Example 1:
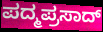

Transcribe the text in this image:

ಪದ್ಮಪ್ರಸಾದ್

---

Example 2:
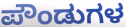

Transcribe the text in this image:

ಪೌಂಡುಗಳ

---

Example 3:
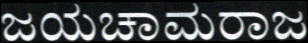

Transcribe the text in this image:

ಜಯಚಾಮರಾಜ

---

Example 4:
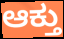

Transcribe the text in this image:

ಆಕ್ತು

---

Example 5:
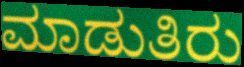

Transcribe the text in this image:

ಮಾಡುತಿರು